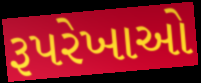
રૂપરેખાઓ